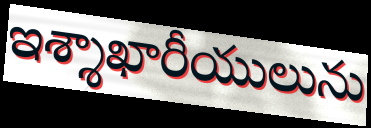
ఇశ్శాఖారీయులును